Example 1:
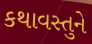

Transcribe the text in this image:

કથાવસ્તુને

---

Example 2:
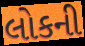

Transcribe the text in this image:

લોકની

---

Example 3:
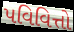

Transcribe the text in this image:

પવિવિત્તો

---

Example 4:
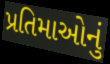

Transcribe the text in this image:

પ્રતિમાઓનું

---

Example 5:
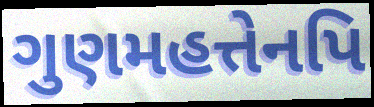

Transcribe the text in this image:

ગુણમહત્તેનપિ